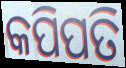
କପିପତି